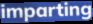
imparting